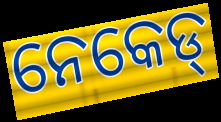
ନେକେଡ୍